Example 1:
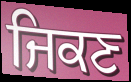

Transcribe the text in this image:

ਜਿਕਣ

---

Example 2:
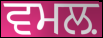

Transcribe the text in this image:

ਵਮਲ਼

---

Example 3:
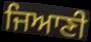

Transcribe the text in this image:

ਜਿਆਣੀ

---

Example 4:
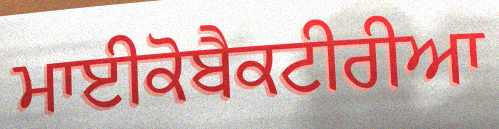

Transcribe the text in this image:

ਮਾਈਕੋਬੈਕਟੀਰੀਆ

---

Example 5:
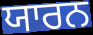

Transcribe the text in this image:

ਯਾਰਨ